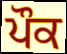
ਪੌਕ